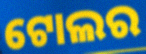
ଟୋଲର